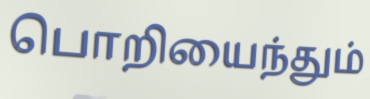
பொறியைந்தும்